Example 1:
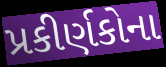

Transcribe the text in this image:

પ્રકીર્ણકોના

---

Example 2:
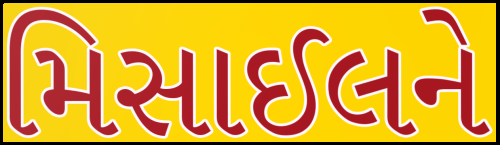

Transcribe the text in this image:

મિસાઈલને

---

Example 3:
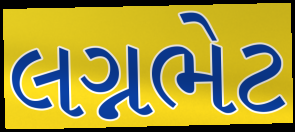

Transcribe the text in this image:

લગ્નભેટ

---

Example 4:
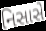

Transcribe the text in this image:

નિસાસે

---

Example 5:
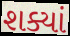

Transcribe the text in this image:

શક્યાં